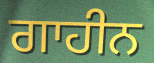
ਗਾਹੀਨ